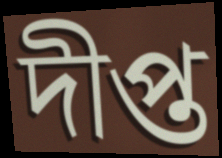
দীপ্ত